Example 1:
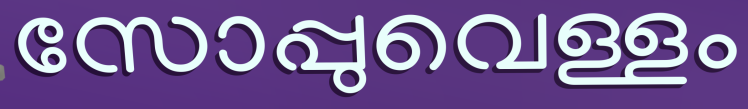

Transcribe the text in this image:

സോപ്പുവെള്ളം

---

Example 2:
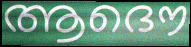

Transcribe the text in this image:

ആദൌ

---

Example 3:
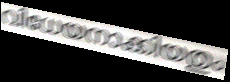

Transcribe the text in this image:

വിധേയനാക്കിയതും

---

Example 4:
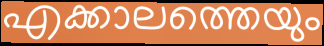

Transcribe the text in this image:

എക്കാലത്തെയും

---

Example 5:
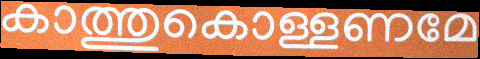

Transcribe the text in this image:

കാത്തുകൊള്ളണമേ